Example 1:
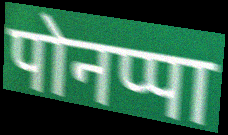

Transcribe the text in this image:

पोनप्पा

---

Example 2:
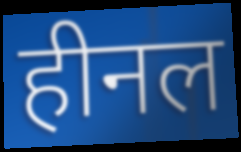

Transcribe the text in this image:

हीनल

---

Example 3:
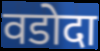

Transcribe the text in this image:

वडोदा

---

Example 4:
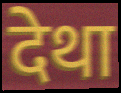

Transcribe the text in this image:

देथा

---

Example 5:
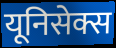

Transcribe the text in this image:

यूनिसेक्स